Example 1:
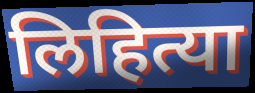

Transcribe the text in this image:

लिहित्या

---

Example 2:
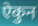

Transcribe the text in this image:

ऐकुन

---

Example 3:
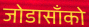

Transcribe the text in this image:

जोडासाँको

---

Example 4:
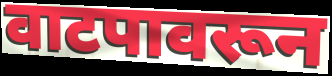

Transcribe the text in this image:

वाटपावरून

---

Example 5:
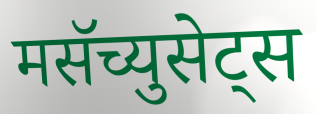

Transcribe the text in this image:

मसॅच्युसेट्स